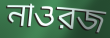
নাওরজ